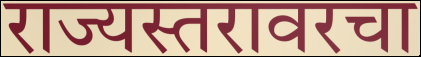
राज्यस्तरावरचा